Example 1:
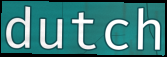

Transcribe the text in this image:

dutch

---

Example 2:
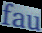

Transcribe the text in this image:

fau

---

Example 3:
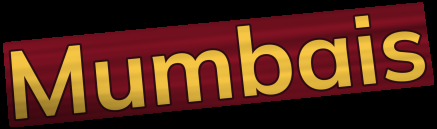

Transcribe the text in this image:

Mumbais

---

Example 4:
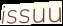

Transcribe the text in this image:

issuu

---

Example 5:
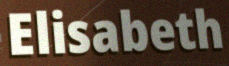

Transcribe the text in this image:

Elisabeth